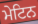
ਮੇਟਿਨ